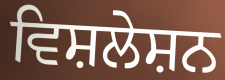
ਵਿਸ਼ਲੇਸ਼ਨ